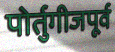
पोर्तुगीजपूर्व